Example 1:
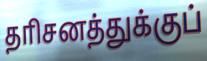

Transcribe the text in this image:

தரிசனத்துக்குப்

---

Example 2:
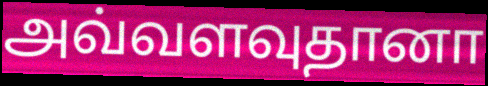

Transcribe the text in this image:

அவ்வளவுதானா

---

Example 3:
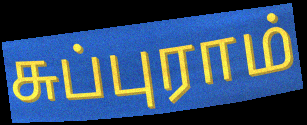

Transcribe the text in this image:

சுப்புராம்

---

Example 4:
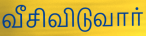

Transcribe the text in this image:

வீசிவிடுவார்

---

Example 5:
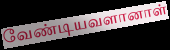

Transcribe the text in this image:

வேண்டியவளானாள்